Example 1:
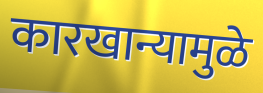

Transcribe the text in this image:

कारखान्यामुळे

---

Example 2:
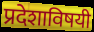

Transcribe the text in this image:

प्रदेशाविषयी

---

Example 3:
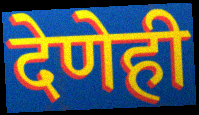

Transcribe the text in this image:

देणेही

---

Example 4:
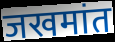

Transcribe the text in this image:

जखमांत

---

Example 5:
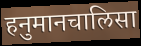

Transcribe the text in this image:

हनुमानचालिसा